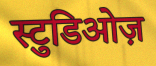
स्टुडिओज़